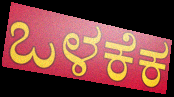
ಒಳಕೆಕ